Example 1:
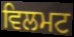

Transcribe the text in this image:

ਵਿਲਮਟ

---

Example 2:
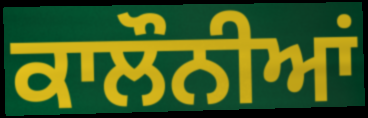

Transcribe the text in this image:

ਕਾਲੌਨੀਆਂ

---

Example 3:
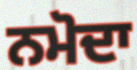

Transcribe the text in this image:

ਨਮੋਦਾ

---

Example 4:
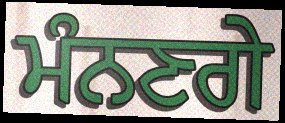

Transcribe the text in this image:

ਮੰਨਣਗੇ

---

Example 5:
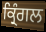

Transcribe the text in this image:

ਕ੍ਰਿੰਗਲ